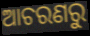
ଆଚରଣରୁ